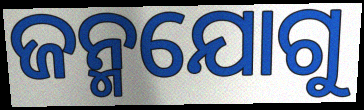
ଜନ୍ମଯୋଗୁ